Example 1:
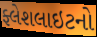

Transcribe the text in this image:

ફ્લેશલાઇટનો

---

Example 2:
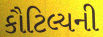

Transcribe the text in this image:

કૌટિલ્યની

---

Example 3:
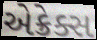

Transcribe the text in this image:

એક્રેક્સ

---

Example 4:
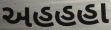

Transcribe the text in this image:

અહહહા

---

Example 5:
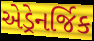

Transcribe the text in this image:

એડ્રેનર્જિક